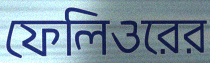
ফেলিওরের